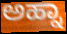
ಅಹ್ನಾ